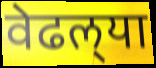
वेढल्या